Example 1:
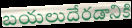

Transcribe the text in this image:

బయలుదేరడానికి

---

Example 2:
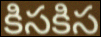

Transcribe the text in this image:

కిసకిస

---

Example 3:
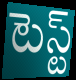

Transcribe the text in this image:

టెస్ట్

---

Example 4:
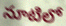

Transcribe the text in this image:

నూటిలో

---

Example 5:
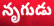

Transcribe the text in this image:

నృగుడు